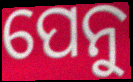
ପେନୁ